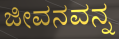
ಜೀವನವನ್ನ